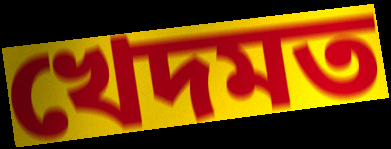
খেদমত